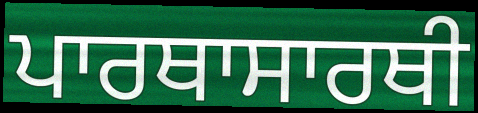
ਪਾਰਥਾਸਾਰਥੀ